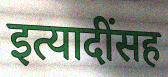
इत्यादींसह